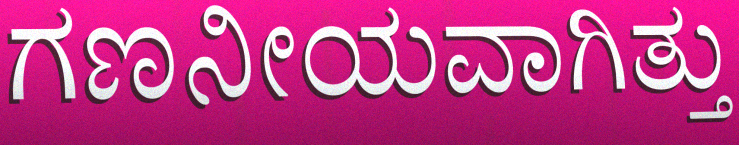
ಗಣನೀಯವಾಗಿತ್ತು